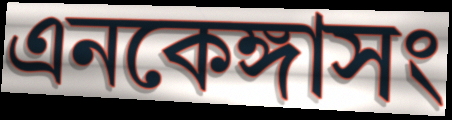
এনকেঙ্গাসং